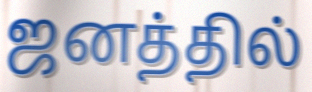
ஜனத்தில்